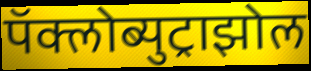
पॅक्लोब्युट्राझोल